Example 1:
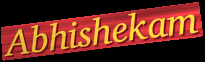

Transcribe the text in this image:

Abhishekam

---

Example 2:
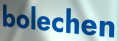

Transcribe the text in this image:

bolechen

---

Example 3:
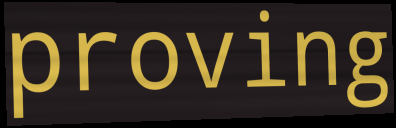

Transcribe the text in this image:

proving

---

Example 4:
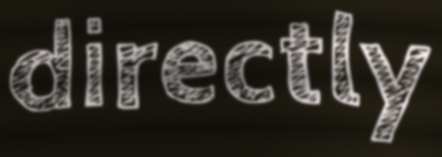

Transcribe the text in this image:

directly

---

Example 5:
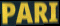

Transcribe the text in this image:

PARI